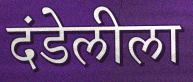
दंडेलीला